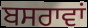
ਬਸਰਾਵਾਂ